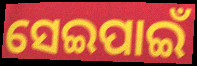
ସେଇପାଇଁ